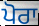
ਪੋਰਾ